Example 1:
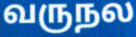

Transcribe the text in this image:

வருநல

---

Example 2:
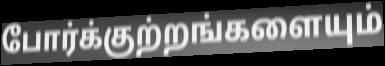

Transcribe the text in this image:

போர்க்குற்றங்களையும்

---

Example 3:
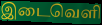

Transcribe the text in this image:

இடைவெளி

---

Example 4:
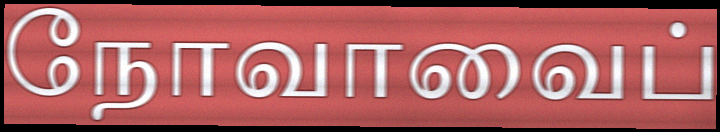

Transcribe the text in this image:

நோவாவைப்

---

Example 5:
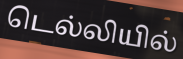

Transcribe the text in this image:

டெல்லியில்